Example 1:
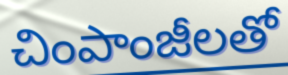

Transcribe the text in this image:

చింపాంజీలతో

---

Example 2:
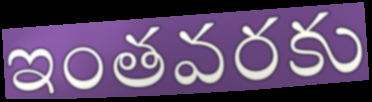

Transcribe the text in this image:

ఇంతవరకు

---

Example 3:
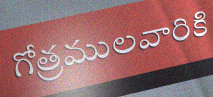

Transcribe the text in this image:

గోత్రములవారికి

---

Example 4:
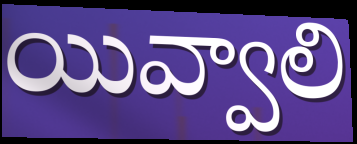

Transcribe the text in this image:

యివ్వాలి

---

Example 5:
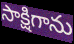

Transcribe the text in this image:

సాక్షిగాను